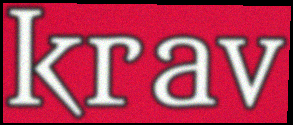
krav